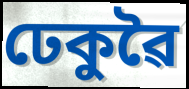
ঢেকুৱৈ